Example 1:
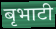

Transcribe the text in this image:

बृभाटी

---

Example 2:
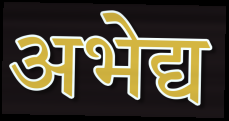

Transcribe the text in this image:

अभेद्य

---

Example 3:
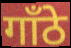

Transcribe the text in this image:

गाँठे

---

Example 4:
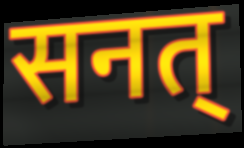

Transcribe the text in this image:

सनत्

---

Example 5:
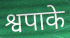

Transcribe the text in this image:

श्वपाके